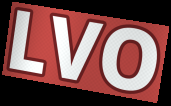
LVO